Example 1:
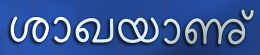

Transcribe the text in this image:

ശാഖയാണു്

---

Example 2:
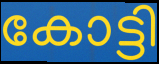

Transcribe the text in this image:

കോട്ടി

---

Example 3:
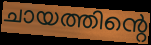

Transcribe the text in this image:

ചായത്തിന്റെ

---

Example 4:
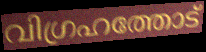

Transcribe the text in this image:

വിഗ്രഹത്തോട്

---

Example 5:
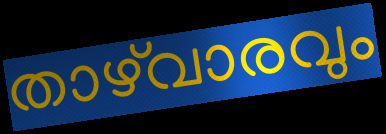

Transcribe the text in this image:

താഴ്‌വാരവും